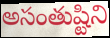
అసంతుష్టిని